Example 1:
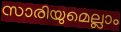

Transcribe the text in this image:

സാരിയുമെല്ലാം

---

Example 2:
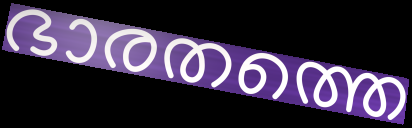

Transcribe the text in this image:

ഭാരതത്തെ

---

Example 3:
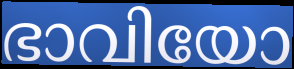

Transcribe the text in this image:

ഭാവിയോ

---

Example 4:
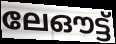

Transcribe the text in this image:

ലേഔട്ട്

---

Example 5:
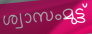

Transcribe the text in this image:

ശ്വാസംമുട്ട്